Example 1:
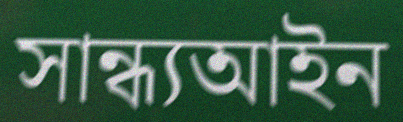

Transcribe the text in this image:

সান্ধ্যআইন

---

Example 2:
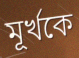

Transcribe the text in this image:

মূর্খকে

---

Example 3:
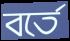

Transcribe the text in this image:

বর্তে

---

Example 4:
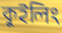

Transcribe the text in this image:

কুইলিং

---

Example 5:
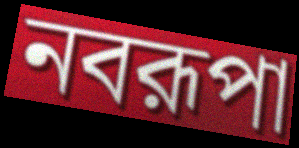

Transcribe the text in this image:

নবরূপা